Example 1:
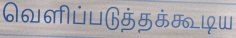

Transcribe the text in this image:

வெளிப்படுத்தக்கூடிய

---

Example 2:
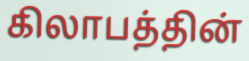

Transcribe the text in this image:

கிலாபத்தின்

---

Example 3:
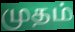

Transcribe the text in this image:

முதம்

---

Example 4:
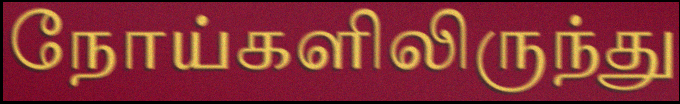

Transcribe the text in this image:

நோய்களிலிருந்து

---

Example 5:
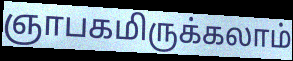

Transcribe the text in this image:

ஞாபகமிருக்கலாம்